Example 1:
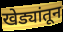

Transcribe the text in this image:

खेड्यांतून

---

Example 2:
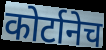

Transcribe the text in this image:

कोर्टानेच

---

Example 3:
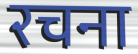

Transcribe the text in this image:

रचना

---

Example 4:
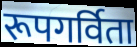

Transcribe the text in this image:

रूपगर्विता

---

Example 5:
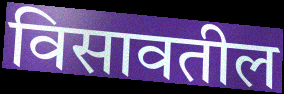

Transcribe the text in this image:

विसावतील